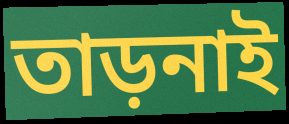
তাড়নাই